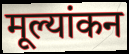
मूल्‍यांकन